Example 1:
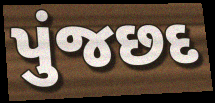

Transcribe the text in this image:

પુંજછદ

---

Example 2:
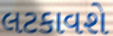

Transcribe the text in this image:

લટકાવશે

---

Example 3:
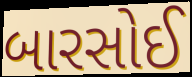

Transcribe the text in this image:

બારસોઈ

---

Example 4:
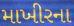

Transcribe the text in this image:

માખીરના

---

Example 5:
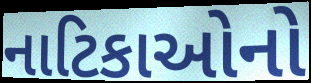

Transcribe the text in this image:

નાટિકાઓનો